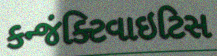
કન્જંક્ટિવાઇટિસ